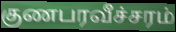
குணபரவீச்சரம்